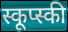
स्कूप्स्की